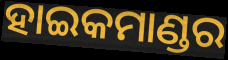
ହାଇକମାଣ୍ଡର